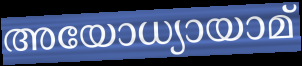
അയോധ്യായാമ്